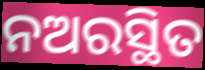
ନଅରସ୍ଥିତ